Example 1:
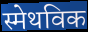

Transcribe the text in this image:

स्मेथविक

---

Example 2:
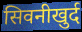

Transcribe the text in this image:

सिवनीखुर्द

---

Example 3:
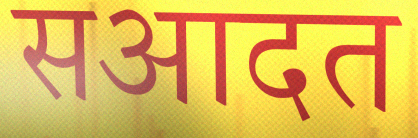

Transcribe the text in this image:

सआदत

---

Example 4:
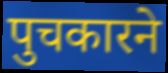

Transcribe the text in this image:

पुचकारने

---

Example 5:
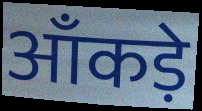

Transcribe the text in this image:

आँकड़े